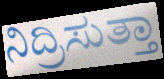
ನಿದ್ರಿಸುತ್ತಾ